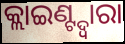
କ୍ଲାଇଣ୍ଟ୍ଦ୍ୱାରା